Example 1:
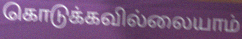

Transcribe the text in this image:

கொடுக்கவில்லையாம்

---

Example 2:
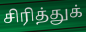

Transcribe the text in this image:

சிரித்துக்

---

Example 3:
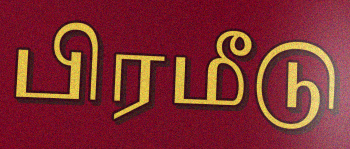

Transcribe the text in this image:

பிரமீடு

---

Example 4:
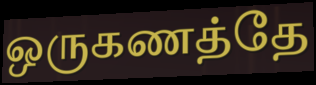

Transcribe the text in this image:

ஒருகணத்தே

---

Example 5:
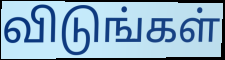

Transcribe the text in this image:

விடுங்கள்